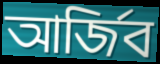
আৰ্জিব